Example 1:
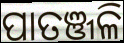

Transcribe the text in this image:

ପାତଞ୍ଜଳି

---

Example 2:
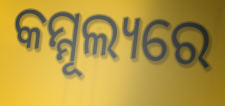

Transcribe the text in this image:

କମ୍ମୂଲ୍ୟରେ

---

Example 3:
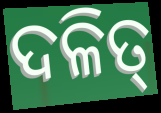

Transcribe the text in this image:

ଦଳିତ୍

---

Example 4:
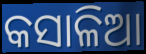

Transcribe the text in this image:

କସାଳିଆ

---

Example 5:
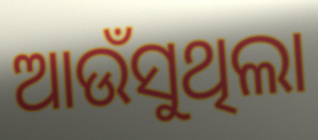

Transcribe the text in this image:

ଆଉଁସୁଥିଲା